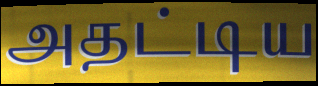
அதட்டிய